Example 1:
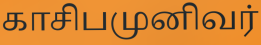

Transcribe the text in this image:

காசிபமுனிவர்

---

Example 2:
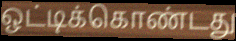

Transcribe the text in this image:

ஒட்டிக்கொண்டது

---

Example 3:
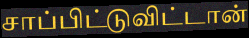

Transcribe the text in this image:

சாப்பிட்டுவிட்டான்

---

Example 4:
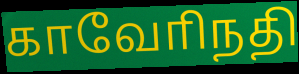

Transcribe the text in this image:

காவேரிநதி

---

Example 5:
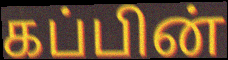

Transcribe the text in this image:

கப்பின்